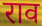
राव